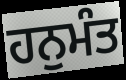
ਹਨੁਮੰਤ